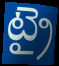
ట్రై